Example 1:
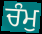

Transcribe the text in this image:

ਚੰਮੁ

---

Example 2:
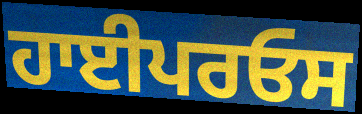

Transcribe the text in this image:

ਹਾਈਪਰਓਸ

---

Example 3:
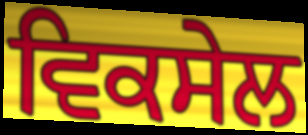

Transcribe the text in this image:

ਵਿਕਸੇਲ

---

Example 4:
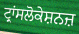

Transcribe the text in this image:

ਟ੍ਰਾਂਸਲੋਕੇਸ਼ਨਜ਼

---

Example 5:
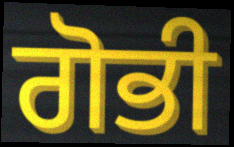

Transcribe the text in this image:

ਗੋਭੀ